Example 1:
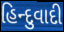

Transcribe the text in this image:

હિન્દુવાદી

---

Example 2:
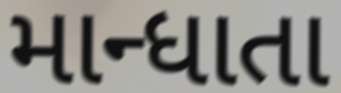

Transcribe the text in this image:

માન્ધાતા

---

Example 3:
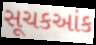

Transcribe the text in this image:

સૂચકઆંક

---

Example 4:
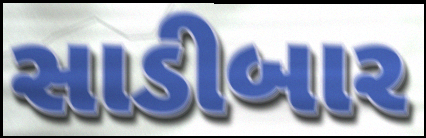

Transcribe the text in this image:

સાડીબાર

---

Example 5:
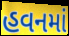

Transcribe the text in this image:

હવનમાં